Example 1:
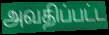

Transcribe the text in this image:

அவதிப்பட்ட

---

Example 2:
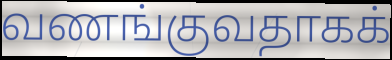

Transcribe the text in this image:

வணங்குவதாகக்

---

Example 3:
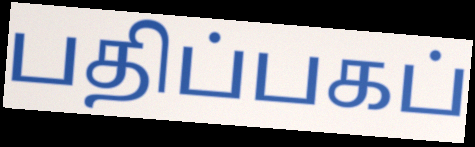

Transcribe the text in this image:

பதிப்பகப்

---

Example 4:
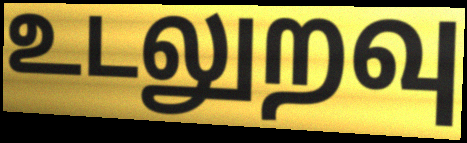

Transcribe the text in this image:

உடலுறவு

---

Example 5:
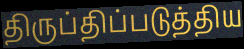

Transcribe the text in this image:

திருப்திப்படுத்திய